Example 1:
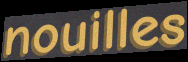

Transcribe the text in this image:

nouilles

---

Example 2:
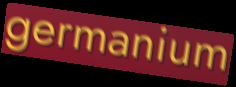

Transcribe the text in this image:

germanium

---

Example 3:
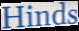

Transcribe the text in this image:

Hinds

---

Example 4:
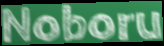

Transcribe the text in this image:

Noboru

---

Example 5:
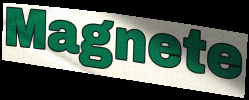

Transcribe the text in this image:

Magnete